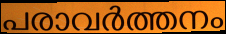
പരാവർത്തനം